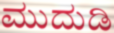
ಮುದುಡಿ